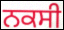
ਨਕਸੀ